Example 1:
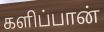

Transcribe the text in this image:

களிப்பான்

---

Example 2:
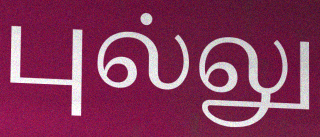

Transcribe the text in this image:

புல்லு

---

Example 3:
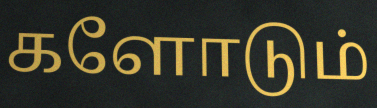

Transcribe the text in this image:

களோடும்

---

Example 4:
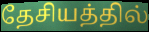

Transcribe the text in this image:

தேசியத்தில்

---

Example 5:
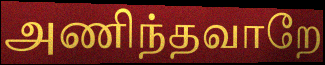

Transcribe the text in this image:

அணிந்தவாறே